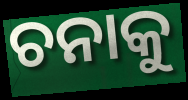
ଚନାକୁ